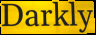
Darkly